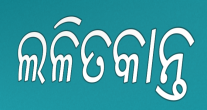
ଲଳିତକାନ୍ତ